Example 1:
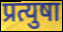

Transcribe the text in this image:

प्रत्युषा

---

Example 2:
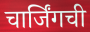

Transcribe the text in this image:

चार्जिंगची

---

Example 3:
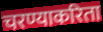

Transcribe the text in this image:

चरण्याकरिता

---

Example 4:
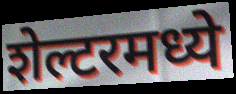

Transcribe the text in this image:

शेल्टरमध्ये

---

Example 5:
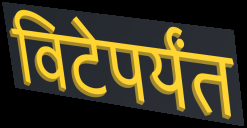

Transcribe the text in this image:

विटेपर्यंत